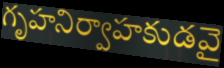
గృహనిర్వాహకుడవై